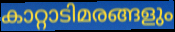
കാറ്റാടിമരങ്ങളും